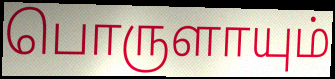
பொருளாயும்